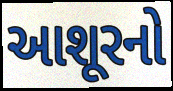
આશૂરનો